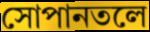
সোপানতলে